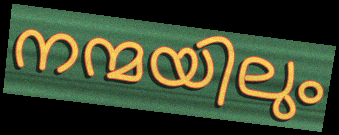
നന്മയിലും